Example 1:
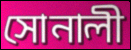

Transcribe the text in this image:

সোনালী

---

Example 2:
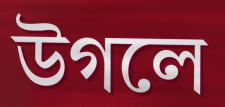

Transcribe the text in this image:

উগলে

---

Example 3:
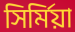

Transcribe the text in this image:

সির্মিয়া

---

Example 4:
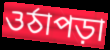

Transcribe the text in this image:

ওঠাপড়া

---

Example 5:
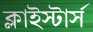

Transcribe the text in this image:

ক্লাইস্টার্স